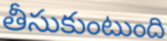
తీసుకుంటుంది